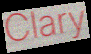
Clary